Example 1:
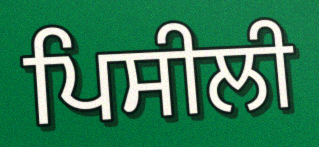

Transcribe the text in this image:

ਪਿਸੀਲੀ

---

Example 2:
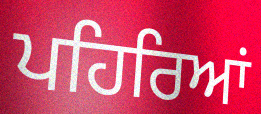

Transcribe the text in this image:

ਪਹਿਰਿਆਂ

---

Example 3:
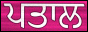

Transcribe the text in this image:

ਪਤਾਲ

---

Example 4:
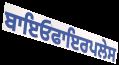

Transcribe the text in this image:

ਬਾਇਓਫਾਇਰਪਲੇਸ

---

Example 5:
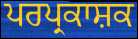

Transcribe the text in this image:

ਪਰਪ੍ਰਕਾਸ਼ਕ